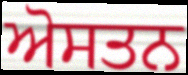
ਅੋਸਤਨ